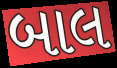
બાલ